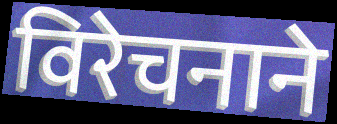
विरेचनाने